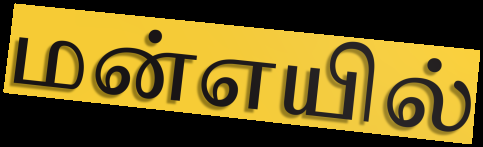
மன்எயில்